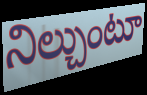
నిల్చుంటూ